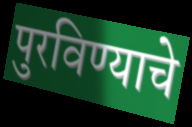
पुरविण्याचे